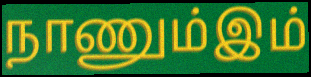
நாணும்இம்